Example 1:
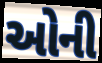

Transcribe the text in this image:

ઓની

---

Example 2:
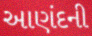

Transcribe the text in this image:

આણંદની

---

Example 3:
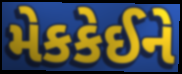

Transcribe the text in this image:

મેકકેઈને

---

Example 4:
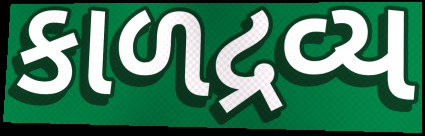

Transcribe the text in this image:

કાળદ્રવ્ય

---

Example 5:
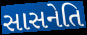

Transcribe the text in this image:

સાસનેતિ